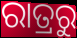
ରାତ୍ରରୁ